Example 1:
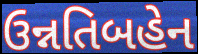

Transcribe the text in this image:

ઉન્નતિબહેન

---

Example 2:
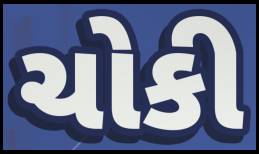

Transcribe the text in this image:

ચોકી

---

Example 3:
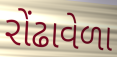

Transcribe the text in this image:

રોંઢાવેળા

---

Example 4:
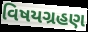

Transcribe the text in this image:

વિષયગ્રહણ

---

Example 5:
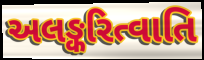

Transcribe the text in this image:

અલઙ્કરિત્વાતિ